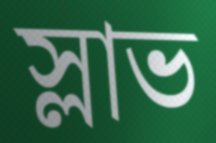
স্লাভ